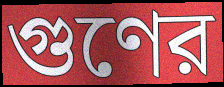
গুণের